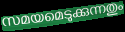
സമയമെടുക്കുന്നതും